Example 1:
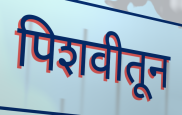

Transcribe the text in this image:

पिशवीतून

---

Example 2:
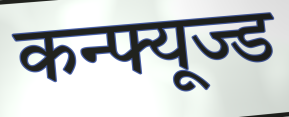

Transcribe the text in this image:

कन्फ्यूज्ड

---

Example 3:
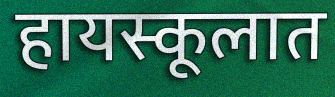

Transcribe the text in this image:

हायस्कूलात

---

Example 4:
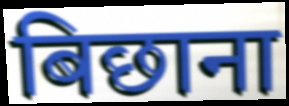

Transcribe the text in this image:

बिछाना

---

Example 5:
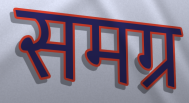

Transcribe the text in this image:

समग्र